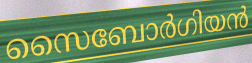
സൈബോർഗിയൻ